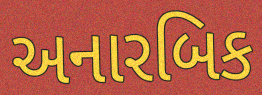
અનારબિક